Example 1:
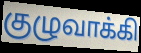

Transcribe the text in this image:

குழுவாக்கி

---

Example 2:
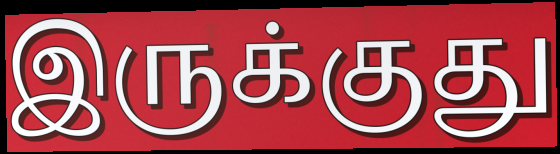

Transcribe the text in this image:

இருக்குது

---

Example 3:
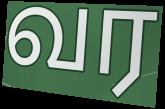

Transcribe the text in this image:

வர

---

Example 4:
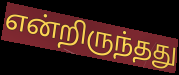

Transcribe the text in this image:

என்றிருந்தது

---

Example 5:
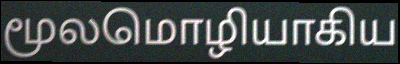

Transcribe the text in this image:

மூலமொழியாகிய